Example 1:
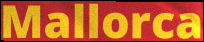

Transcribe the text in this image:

Mallorca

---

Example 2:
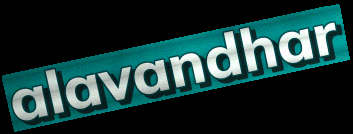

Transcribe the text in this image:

alavandhar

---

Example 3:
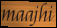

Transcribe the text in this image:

maajhi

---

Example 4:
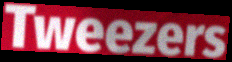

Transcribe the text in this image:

Tweezers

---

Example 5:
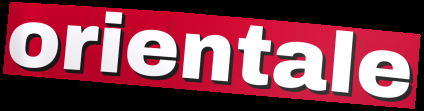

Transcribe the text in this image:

orientale